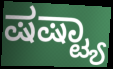
ಷಷ್ಟ್ಯಾ